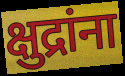
क्षुद्रांना